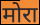
मोरा